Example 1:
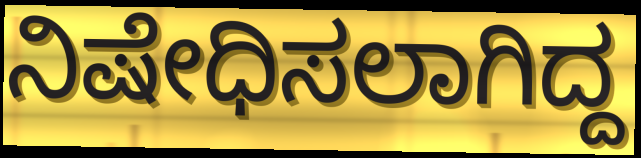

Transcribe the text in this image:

ನಿಷೇಧಿಸಲಾಗಿದ್ದ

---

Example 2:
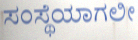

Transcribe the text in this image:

ಸಂಸ್ಥೆಯಾಗಲೀ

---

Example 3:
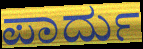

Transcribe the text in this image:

ಪಾರ್ದು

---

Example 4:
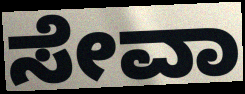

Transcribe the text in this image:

ಸೇವಾ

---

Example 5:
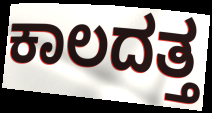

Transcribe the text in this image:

ಕಾಲದತ್ತ